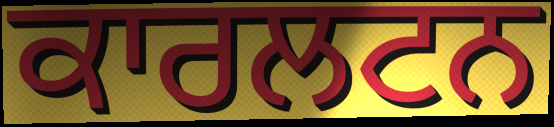
ਕਾਰਲਟਨ